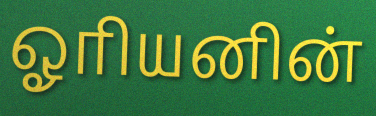
ஓரியனின்